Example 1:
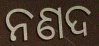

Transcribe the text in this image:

ନଣଦ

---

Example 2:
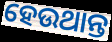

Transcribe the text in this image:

ହେଉଥାନ୍ତ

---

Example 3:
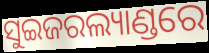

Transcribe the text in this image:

ସୁଇଜରଲ୍ୟାଣ୍ଡରେ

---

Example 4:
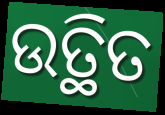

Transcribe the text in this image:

ଉତ୍ଥିତ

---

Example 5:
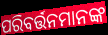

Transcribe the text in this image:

ପରିବର୍ତ୍ତନମାନଙ୍କ